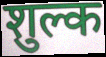
शुल्क